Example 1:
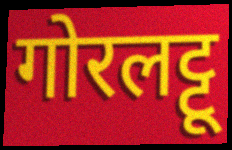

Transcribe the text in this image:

गोरलट्टू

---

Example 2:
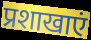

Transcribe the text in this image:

प्रशाखाएं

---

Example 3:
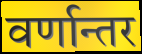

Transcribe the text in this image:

वर्णान्तर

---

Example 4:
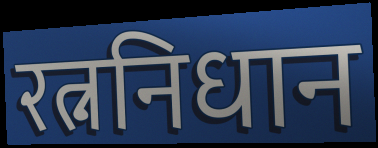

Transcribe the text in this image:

रत्ननिधान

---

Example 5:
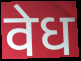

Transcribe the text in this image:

वेध